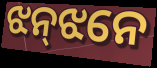
ଝନ୍‌ଝନେ